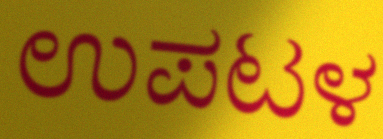
ಉಪಟಳ